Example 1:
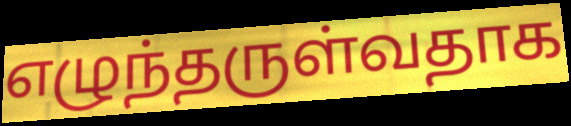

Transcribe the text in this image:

எழுந்தருள்வதாக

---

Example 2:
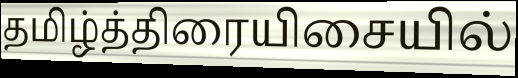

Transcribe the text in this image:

தமிழ்த்திரையிசையில்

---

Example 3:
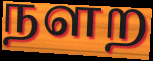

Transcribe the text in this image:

நளற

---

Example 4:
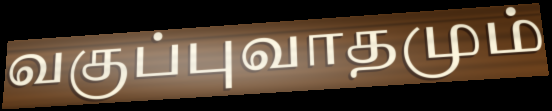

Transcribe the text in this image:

வகுப்புவாதமும்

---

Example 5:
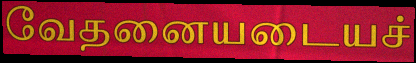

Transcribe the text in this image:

வேதனையடையச்